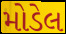
મોડેલ